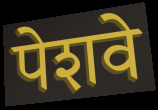
पेशवे